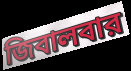
জিবালবার